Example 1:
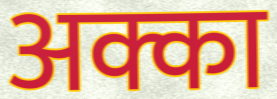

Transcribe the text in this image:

अक्का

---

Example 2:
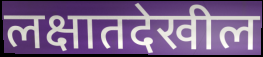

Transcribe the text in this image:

लक्षातदेखील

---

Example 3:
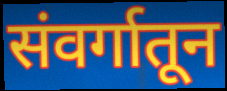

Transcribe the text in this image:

संवर्गातून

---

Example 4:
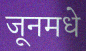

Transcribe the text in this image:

जूनमधे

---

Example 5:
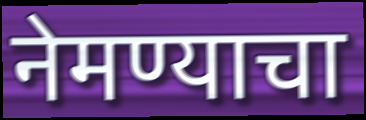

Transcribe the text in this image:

नेमण्याचा